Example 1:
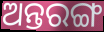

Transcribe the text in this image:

ଅନ୍ତରଙ୍ଗ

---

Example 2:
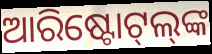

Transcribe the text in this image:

ଆରିଷ୍ଟୋଟ୍‌ଲ୍‌ଙ୍କ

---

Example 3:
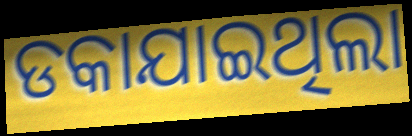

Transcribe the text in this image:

ଡକାଯାଇଥିଲା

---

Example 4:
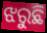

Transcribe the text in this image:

ଝରୁଛି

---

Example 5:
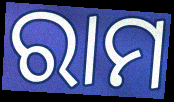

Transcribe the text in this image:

ରାମ